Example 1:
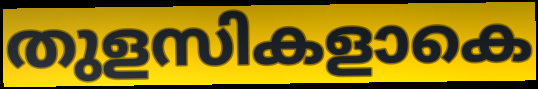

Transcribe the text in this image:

തുളസികളാകെ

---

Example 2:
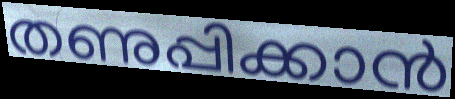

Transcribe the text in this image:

തണുപ്പിക്കാൻ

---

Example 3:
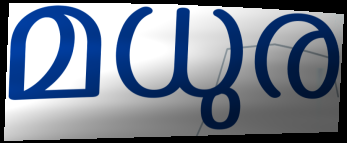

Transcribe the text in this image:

മധുര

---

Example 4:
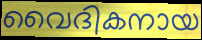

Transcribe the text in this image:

വൈദികനായ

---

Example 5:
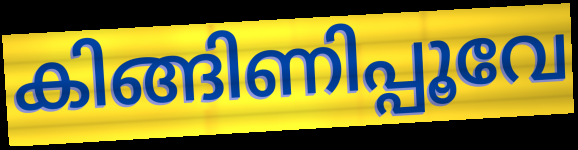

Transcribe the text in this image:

കിങ്ങിണിപ്പൂവേ